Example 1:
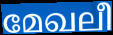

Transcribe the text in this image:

മേഖലീ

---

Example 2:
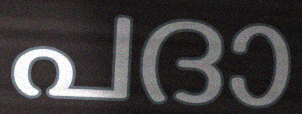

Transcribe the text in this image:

പദാ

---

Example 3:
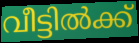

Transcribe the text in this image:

വീട്ടിൽക്ക്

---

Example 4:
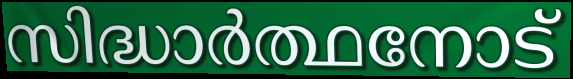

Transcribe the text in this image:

സിദ്ധാർത്ഥനോട്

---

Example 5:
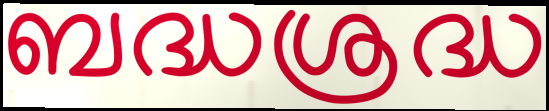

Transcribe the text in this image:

ബദ്ധശ്രദ്ധ